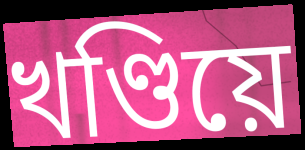
খণ্ডিয়ে